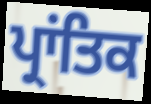
ਪ੍ਰਾਂਤਿਕ